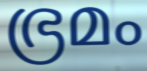
ഭ്രമം